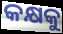
କକ୍ଷକୁ